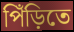
পিঁড়িতে